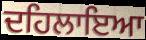
ਦਹਿਲਾਇਆ